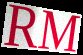
RM